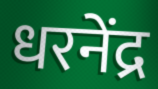
धरनेंद्र